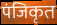
पंजिकृत